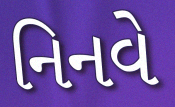
નિનવે